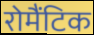
रोमैंटिक